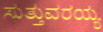
ಸುತ್ತುವರಯ್ಯ